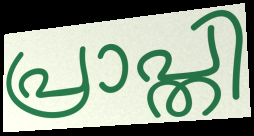
പ്രാപ്തി